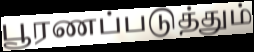
பூரணப்படுத்தும்